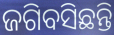
ଜଗିବସିଛନ୍ତି